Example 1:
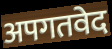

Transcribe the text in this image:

अपगतवेद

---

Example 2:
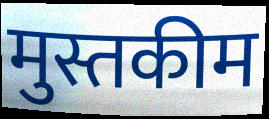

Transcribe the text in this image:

मुस्तकीम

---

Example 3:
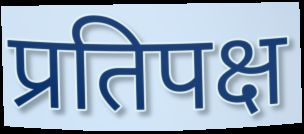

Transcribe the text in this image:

प्रतिपक्ष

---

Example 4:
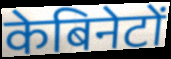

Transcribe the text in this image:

केबिनेटों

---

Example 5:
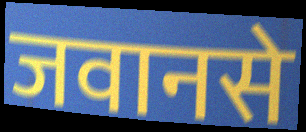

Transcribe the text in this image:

जवानसे